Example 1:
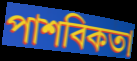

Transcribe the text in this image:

পাশবিকতা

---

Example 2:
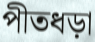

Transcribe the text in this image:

পীতধড়া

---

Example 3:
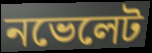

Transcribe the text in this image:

নভেলেট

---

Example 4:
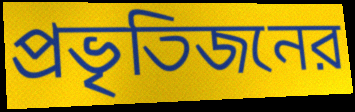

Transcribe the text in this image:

প্রভৃতিজনের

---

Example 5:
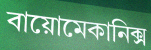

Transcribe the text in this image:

বায়োমেকানিক্স